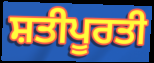
ਸ਼ਤੀਪੂਰਤੀ